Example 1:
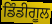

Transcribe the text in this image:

ਡਿੰਡੀਗੂਲ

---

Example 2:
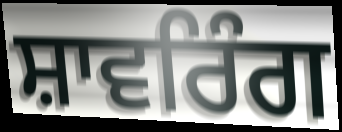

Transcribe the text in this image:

ਸ਼ਾਵਰਿੰਗ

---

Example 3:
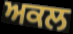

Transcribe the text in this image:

ਅਕਲ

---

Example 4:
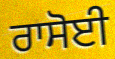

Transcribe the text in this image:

ਰਾਸੋਈ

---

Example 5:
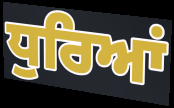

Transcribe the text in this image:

ਧੁਰਿਆਂ